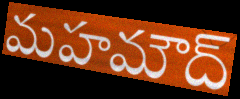
మహమౌద్